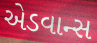
એડવાન્સ